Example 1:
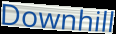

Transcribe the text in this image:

Downhill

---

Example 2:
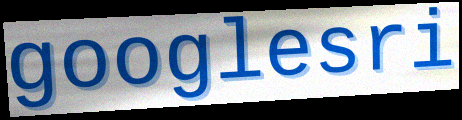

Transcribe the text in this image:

googlesri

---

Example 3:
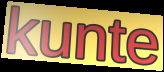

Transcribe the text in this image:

kunte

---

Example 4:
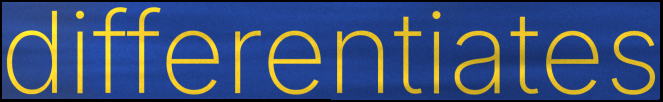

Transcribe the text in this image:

differentiates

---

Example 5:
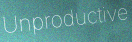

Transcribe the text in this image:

Unproductive